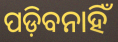
ପଡ଼ିବନାହିଁ